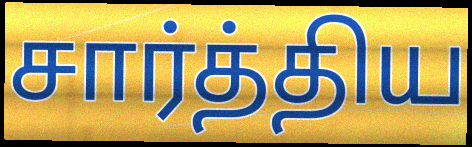
சார்த்திய